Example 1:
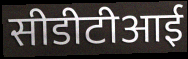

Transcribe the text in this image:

सीडीटीआई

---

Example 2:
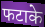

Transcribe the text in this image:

फटाके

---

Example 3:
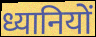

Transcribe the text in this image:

ध्यानियों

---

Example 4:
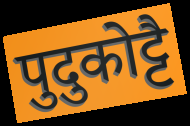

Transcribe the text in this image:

पुदुकोट्टै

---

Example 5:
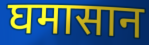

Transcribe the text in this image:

घमासान